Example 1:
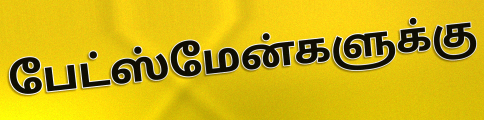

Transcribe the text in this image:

பேட்ஸ்மேன்களுக்கு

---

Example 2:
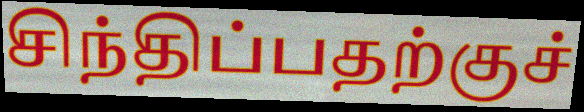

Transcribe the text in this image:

சிந்திப்பதற்குச்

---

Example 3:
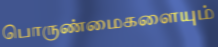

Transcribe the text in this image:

பொருண்மைகளையும்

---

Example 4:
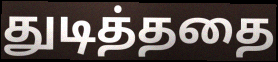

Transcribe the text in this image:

துடித்ததை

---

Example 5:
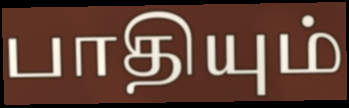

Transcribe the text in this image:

பாதியும்